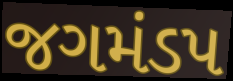
જગમંડપ